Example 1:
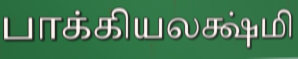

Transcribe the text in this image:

பாக்கியலக்ஷ்மி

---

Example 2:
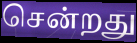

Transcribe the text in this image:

சென்றது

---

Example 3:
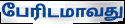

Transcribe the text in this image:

பேரிடமாவது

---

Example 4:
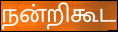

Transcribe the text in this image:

நன்றிகூட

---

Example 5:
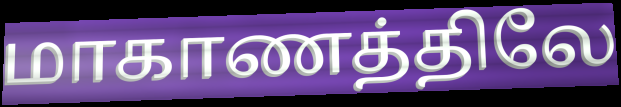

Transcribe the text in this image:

மாகாணத்திலே